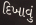
દિખાવું